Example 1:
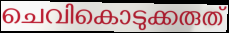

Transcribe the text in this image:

ചെവികൊടുക്കരുത്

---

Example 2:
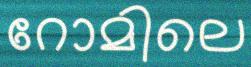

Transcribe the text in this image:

റോമിലെ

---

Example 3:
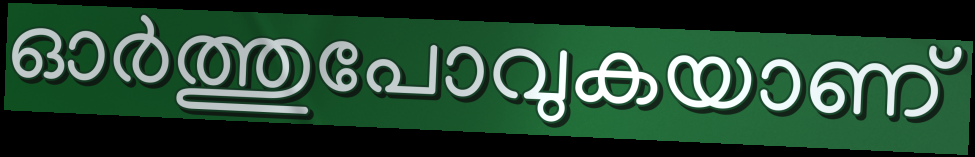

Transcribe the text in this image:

ഓർത്തുപോവുകയാണ്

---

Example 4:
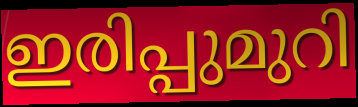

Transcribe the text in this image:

ഇരിപ്പുമുറി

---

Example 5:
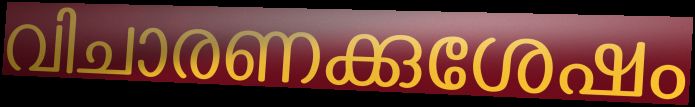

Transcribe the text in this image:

വിചാരണക്കുശേഷം